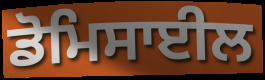
ਡੋਮਿਸਾਈਲ